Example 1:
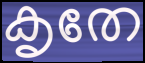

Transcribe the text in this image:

കൃതേ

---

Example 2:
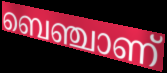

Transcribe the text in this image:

ബെഞ്ചാണ്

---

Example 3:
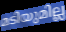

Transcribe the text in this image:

മടിയുമില്ല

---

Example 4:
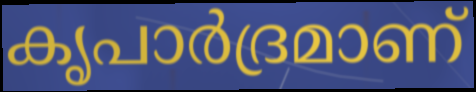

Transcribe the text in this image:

കൃപാർദ്രമാണ്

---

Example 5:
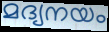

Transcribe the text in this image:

മദ്യനയം